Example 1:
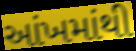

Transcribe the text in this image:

આંખમાંથી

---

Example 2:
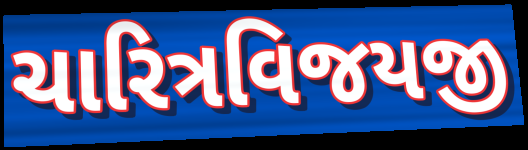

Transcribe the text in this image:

ચારિત્રવિજયજી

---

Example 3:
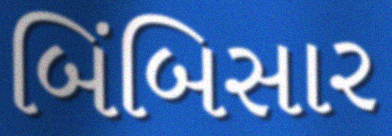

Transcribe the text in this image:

બિંબિસાર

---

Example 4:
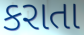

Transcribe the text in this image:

કરાતા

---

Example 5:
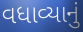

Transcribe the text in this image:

વધાવ્યાનું